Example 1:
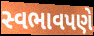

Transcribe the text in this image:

સ્વભાવપણે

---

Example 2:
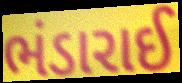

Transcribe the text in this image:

ભંડારાઈ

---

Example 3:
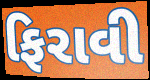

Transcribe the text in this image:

ફિરાવી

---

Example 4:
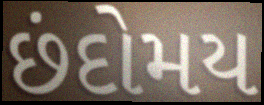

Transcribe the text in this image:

છંદોમય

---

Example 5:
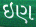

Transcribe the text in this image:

ઇણ